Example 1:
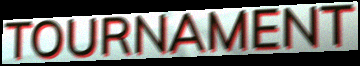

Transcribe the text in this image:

TOURNAMENT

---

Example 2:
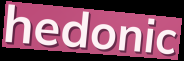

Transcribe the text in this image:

hedonic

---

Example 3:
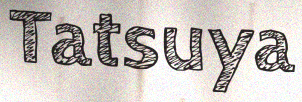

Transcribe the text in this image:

Tatsuya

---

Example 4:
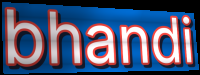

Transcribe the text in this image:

bhandi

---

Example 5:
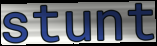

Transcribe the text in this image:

stunt